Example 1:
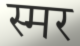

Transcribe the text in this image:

स्मर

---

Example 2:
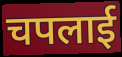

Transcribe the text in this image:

चपलाई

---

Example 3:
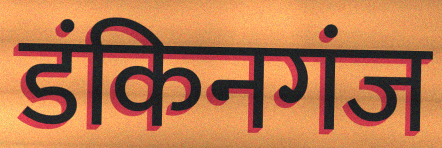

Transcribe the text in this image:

डंकिनगंज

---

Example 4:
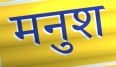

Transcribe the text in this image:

मनुश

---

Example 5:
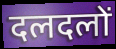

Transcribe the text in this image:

दलदलों